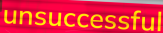
unsuccessful